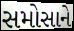
સમોસાને